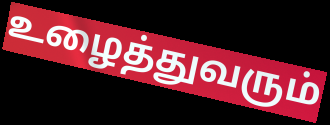
உழைத்துவரும்